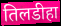
तिलडीहा